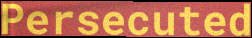
Persecuted